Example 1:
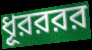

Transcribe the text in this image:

ধূরররর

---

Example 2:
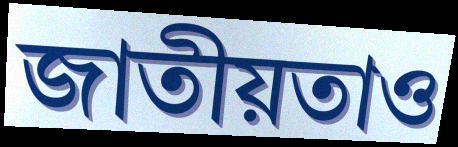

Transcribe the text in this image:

জাতীয়তাও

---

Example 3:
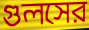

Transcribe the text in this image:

গুলসের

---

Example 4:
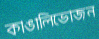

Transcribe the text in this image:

কাঙালিভোজন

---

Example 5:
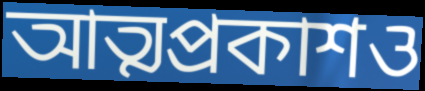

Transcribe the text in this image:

আত্মপ্রকাশও